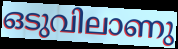
ഒടുവിലാണു